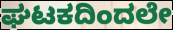
ಘಟಕದಿಂದಲೇ